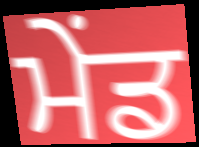
ਮੇਂਡ